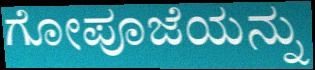
ಗೋಪೂಜೆಯನ್ನು